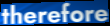
therefore